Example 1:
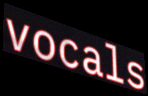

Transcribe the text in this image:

vocals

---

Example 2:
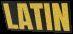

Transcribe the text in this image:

LATIN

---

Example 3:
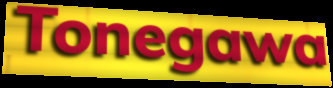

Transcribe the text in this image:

Tonegawa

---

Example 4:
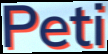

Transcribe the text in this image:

Peti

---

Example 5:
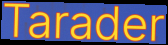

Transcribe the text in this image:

Tarader